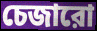
চেজারো